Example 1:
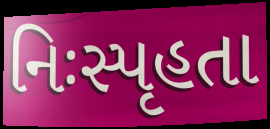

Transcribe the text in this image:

નિઃસ્પૃહતા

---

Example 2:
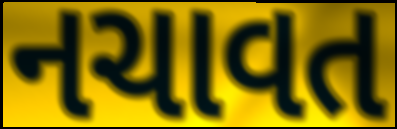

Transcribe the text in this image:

નચાવત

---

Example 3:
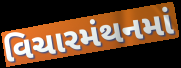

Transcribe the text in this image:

વિચારમંથનમાં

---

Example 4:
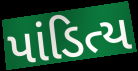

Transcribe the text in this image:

પાંડિત્ય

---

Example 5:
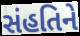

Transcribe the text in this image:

સંહતિને